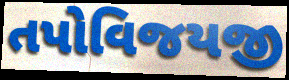
તપોવિજયજી